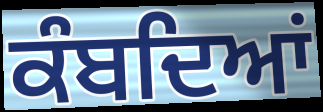
ਕੰਬਦਿਆਂ